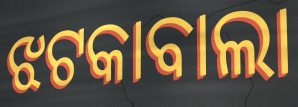
ଝଟକାବାଲା